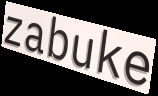
zabuke